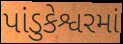
પાંડુકેશ્વરમાં